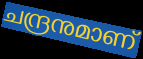
ചന്ദ്രനുമാണ്